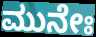
ಮುನೇಃ